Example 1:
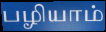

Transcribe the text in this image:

பழியாம்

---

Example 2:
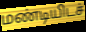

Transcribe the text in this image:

மண்டியிடச்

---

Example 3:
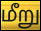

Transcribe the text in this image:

மீறு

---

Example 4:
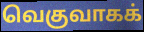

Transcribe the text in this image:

வெகுவாகக்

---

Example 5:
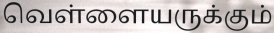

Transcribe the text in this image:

வெள்ளையருக்கும்